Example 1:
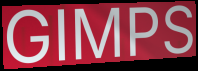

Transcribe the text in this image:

GIMPS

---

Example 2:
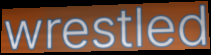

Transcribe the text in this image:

wrestled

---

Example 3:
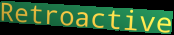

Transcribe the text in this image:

Retroactive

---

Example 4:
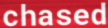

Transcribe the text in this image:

chased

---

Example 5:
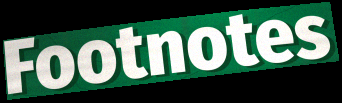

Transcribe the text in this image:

Footnotes